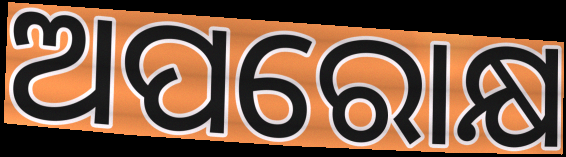
ଅପରୋକ୍ଷ